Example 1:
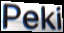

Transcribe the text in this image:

Peki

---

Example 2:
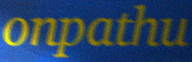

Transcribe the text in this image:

onpathu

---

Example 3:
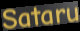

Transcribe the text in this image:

Sataru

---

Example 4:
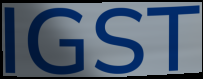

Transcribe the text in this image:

IGST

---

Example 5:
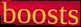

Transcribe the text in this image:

boosts